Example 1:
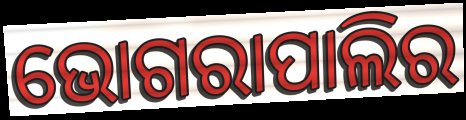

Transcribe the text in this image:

ଭୋଗରାପାଲିର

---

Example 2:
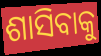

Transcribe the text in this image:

ଶାସିବାକୁ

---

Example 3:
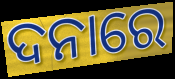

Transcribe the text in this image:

ଦନାରେ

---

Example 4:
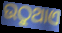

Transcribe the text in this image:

ଉଠୁଥାଏ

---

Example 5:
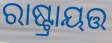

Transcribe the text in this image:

ରାଷ୍ଟ୍ରାୟତ୍ତ